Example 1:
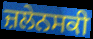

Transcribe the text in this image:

ਜ਼ਲੇਨਸਕੀ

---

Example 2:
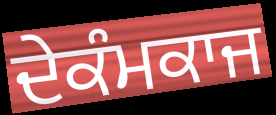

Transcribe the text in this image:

ਦੇਕੰਮਕਾਜ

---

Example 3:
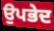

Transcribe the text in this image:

ਉਪਭੇਦ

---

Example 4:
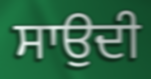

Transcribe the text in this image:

ਸਾਉਦੀ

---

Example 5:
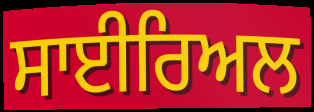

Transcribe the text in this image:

ਸਾਈਰਿਅਲ